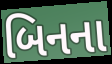
બિનના